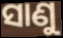
ସାଣୁ